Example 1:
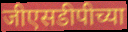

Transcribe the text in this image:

जीएसडीपीच्या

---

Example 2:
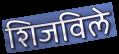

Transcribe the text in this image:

शिजविले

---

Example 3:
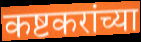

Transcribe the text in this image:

कष्टकरांच्या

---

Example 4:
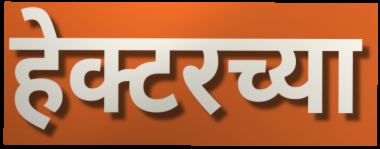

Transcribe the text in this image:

हेक्टरच्या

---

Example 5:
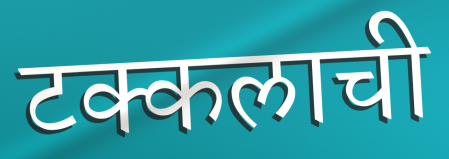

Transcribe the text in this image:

टक्कलाची